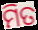
ମିତ